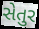
સેતુર